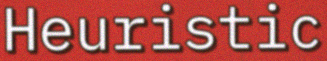
Heuristic